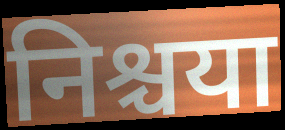
निश्चया